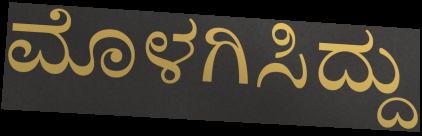
ಮೊಳಗಿಸಿದ್ದು